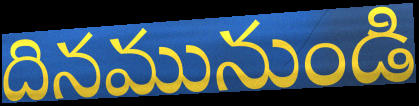
దినమునుండి